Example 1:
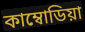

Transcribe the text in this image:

কাম্বোডিয়া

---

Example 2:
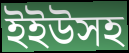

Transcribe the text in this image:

ইইউসহ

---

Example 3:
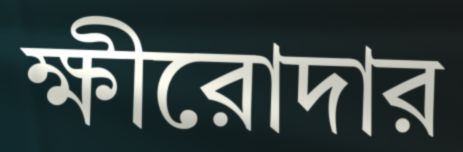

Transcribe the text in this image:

ক্ষীরোদার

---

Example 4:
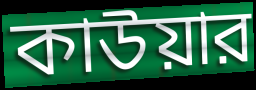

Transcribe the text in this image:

কাউয়ার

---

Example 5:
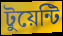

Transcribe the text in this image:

টুয়েন্টি